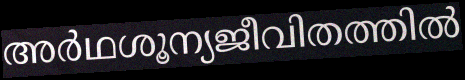
അർഥശൂന്യജീവിതത്തിൽ